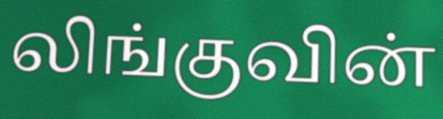
லிங்குவின்